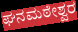
ಘನಮಠೇಶ್ವರ